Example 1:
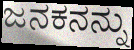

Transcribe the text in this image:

ಜನಕನನ್ನು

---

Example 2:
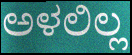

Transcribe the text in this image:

ಅಳಲಿಲ್ಲ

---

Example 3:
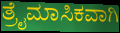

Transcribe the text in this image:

ತ್ರೈಮಾಸಿಕವಾಗಿ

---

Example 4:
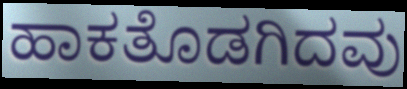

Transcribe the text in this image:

ಹಾಕತೊಡಗಿದವು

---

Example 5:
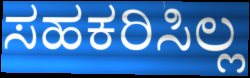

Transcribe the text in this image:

ಸಹಕರಿಸಿಲ್ಲ